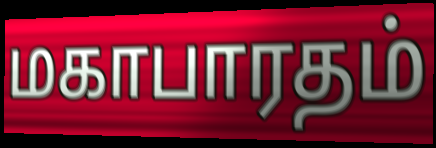
மகாபாரதம்